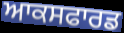
ਆਕਸਫਾਰਡ